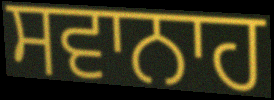
ਸਵਾਨਾਹ